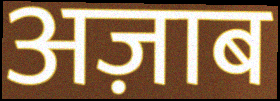
अज़ाब